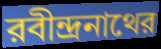
রবীন্দ্রনাথের